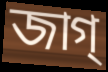
জাগ্